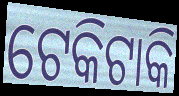
ଟେକିଟାକି